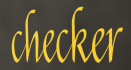
checker